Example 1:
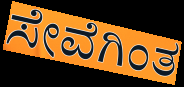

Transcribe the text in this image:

ಸೇವೆಗಿಂತ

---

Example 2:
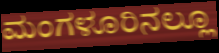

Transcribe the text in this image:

ಮಂಗಳೂರಿನಲ್ಲೂ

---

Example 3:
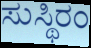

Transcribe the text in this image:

ಸುಸ್ಥಿರಂ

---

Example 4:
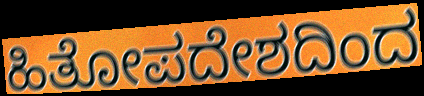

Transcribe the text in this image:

ಹಿತೋಪದೇಶದಿಂದ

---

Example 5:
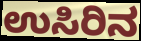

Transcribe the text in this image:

ಉಸಿರಿನ